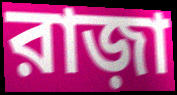
রাজ়া